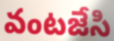
వంటజేసి